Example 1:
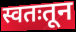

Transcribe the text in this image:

स्वतःतून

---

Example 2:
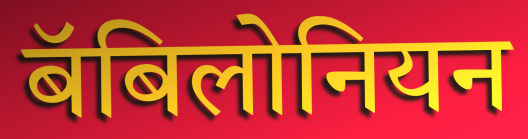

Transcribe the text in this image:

बॅबिलोनियन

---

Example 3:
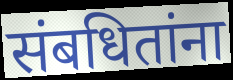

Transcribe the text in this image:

संबधितांना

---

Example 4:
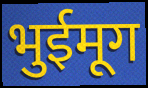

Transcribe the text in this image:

भुईमूग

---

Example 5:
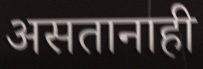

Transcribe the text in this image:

असतानाही